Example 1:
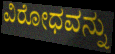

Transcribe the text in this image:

ವಿರೋಧವನ್ನು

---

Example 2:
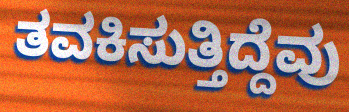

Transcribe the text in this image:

ತವಕಿಸುತ್ತಿದ್ದೆವು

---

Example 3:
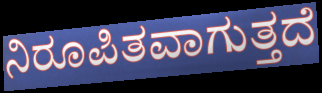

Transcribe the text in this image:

ನಿರೂಪಿತವಾಗುತ್ತದೆ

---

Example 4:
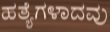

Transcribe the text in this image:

ಹತ್ಯೆಗಳಾದವು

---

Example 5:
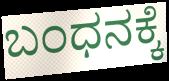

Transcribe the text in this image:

ಬಂಧನಕ್ಕೆ